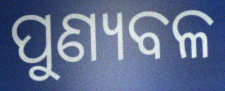
ପୁଣ୍ୟବଳ